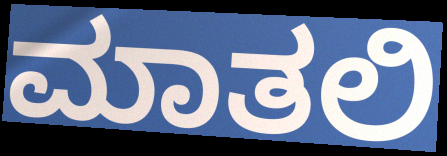
ಮಾತಲಿ